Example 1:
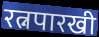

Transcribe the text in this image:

रत्नपारखी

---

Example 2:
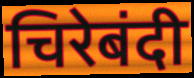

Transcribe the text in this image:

चिरेबंदी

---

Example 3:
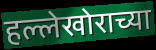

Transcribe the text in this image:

हल्लेखोराच्या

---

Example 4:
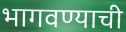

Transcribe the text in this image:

भागवण्याची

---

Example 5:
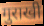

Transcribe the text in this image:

गुराखी